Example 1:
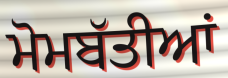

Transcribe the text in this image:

ਮੋਮਬੱਤੀਆਂ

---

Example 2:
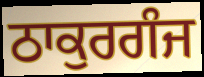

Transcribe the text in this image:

ਠਾਕੁਰਗੰਜ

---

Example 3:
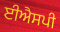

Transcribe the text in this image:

ਈਐਸਪੀ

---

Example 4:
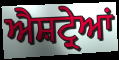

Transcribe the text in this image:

ਐਸ਼ਟ੍ਰੇਆਂ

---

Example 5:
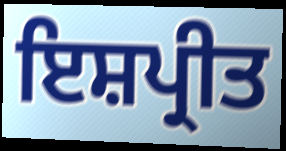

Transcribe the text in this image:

ਇਸ਼ਪ੍ਰੀਤ